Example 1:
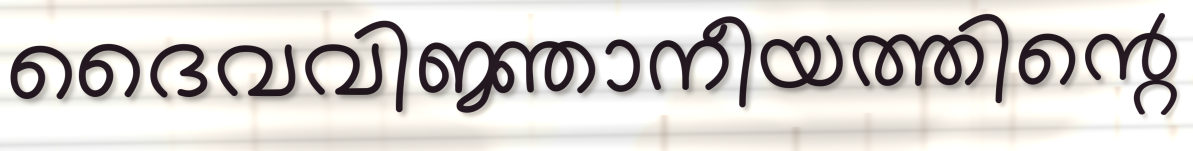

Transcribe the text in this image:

ദൈവവിജ്ഞാനീയത്തിന്റെ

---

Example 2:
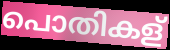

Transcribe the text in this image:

പൊതികള്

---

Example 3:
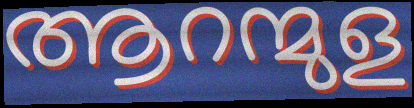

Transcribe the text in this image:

ആറന്മുള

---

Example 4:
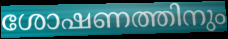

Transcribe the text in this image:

ശോഷണത്തിനും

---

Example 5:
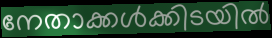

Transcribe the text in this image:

നേതാക്കൾക്കിടയിൽ